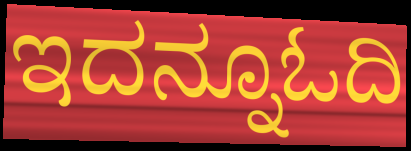
ಇದನ್ನೂಓದಿ